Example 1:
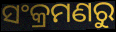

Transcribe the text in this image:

ସଂକ୍ରମଣରୁ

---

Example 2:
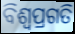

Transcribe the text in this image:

ବିଶ୍ବପ୍ରଗତି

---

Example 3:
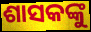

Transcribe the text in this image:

ଶାସକଙ୍କୁ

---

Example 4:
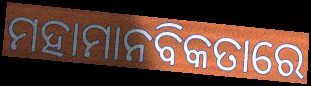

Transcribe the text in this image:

ମହାମାନବିକତାରେ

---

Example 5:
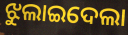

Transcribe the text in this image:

ଝୁଲାଇଦେଲା